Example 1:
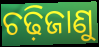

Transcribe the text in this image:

ଚଢ଼ିଜାଣୁ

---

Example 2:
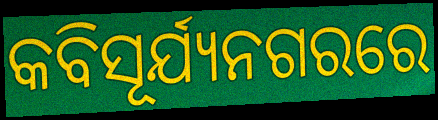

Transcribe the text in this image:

କବିସୂର୍ଯ୍ୟନଗରରେ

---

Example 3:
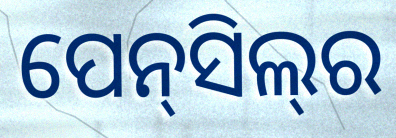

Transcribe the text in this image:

ପେନ୍‌ସିଲ୍‌ର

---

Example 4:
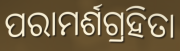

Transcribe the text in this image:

ପରାମର୍ଶଗ୍ରହିତା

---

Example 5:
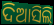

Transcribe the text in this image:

ଦିଆସିଲି